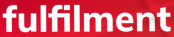
fulfilment